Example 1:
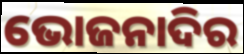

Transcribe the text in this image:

ଭୋଜନାଦିର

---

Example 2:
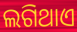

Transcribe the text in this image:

ଲଗିଥାଏ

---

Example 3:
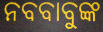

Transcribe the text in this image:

ନବବାବୁଙ୍କ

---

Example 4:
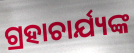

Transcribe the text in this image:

ଗ୍ରହାଚାର୍ଯ୍ୟଙ୍କ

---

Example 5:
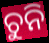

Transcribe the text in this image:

ଚୁନି